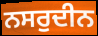
ਨਸਰੁਦੀਨ